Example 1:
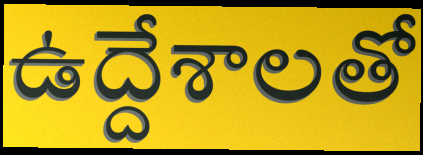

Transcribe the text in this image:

ఉద్దేశాలతో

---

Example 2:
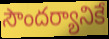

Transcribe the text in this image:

సౌందర్యానికే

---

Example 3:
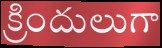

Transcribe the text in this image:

క్రిందులుగా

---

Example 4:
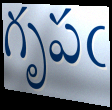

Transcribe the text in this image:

గృపఁ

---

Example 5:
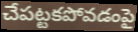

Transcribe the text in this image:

చేపట్టకపోవడంపై